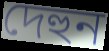
দেহুন